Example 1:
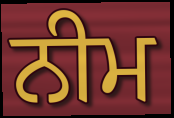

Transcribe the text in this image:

ਨੀਮ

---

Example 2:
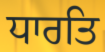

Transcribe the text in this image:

ਧਾਰਤਿ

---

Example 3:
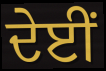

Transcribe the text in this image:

ਦੇਈਂ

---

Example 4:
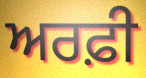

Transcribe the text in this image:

ਅਰਫ਼ੀ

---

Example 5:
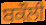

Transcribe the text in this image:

ਬਕੌਲੀ